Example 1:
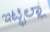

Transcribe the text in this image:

ಇಟ್ಟೆಲ್ಲಾ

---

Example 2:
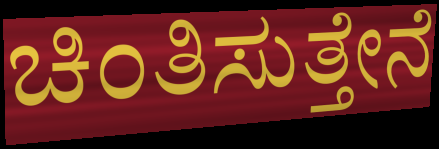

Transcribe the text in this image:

ಚಿಂತಿಸುತ್ತೇನೆ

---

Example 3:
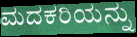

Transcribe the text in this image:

ಮದಕರಿಯನ್ನು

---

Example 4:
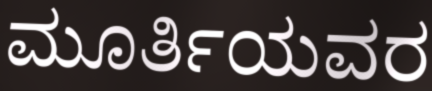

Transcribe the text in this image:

ಮೂರ್ತಿಯವರ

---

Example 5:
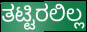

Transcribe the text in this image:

ತಟ್ಟಿರಲಿಲ್ಲ